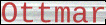
Ottmar